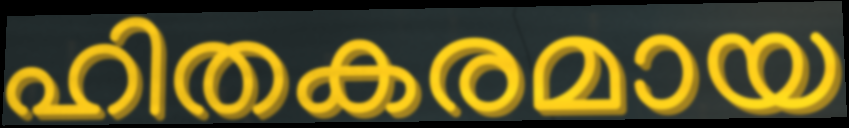
ഹിതകരമായ